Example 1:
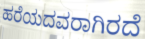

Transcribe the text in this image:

ಹರೆಯದವರಾಗಿರದೆ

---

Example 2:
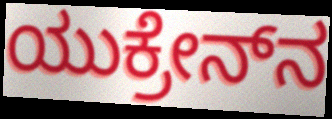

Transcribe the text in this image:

ಯುಕ್ರೇನ್‌ನ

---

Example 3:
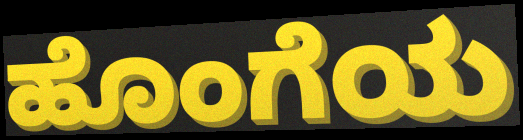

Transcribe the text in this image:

ಹೊಂಗೆಯ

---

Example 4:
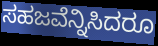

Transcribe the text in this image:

ಸಹಜವೆನ್ನಿಸಿದರೂ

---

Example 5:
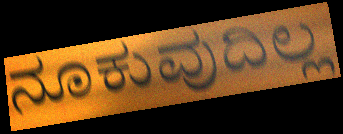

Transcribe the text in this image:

ನೂಕುವುದಿಲ್ಲ